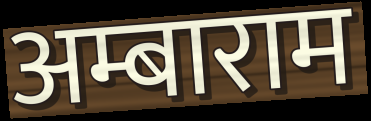
अम्बाराम